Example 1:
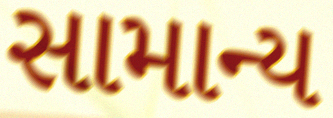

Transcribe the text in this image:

સામાન્ય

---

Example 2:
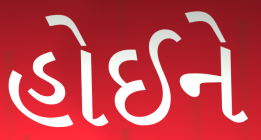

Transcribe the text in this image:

હોઈને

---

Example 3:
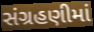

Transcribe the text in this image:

સંગ્રહણીમાં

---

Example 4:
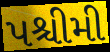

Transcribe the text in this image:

પશ્ચીમી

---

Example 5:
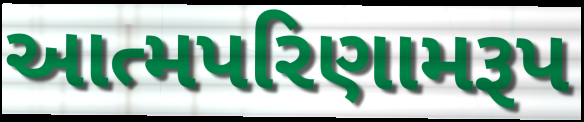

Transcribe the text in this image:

આત્મપરિણામરૂપ